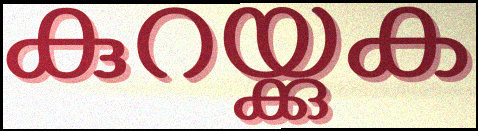
കുറയ്ക്കുക